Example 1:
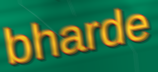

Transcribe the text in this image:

bharde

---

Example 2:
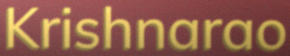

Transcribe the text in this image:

Krishnarao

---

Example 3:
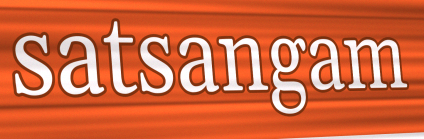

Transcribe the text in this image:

satsangam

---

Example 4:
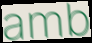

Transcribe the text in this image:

amb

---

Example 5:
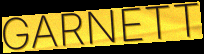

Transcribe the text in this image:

GARNETT